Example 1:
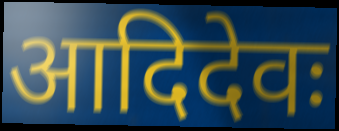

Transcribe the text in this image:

आदिदेवः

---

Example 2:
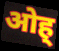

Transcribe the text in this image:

ओह्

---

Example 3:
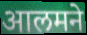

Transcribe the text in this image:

आलमने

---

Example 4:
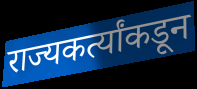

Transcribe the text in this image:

राज्यकर्त्यांकडून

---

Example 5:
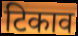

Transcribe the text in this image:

टिकाव